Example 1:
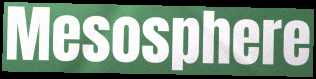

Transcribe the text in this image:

Mesosphere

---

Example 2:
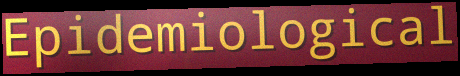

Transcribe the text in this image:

Epidemiological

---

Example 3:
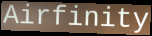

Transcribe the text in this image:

Airfinity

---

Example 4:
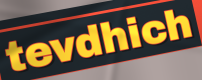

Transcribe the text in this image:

tevdhich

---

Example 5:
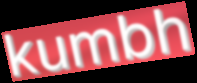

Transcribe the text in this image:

kumbh